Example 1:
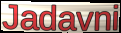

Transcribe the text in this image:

Jadavni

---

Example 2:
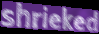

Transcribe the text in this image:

shrieked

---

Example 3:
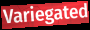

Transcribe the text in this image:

Variegated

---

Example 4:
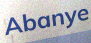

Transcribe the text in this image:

Abanye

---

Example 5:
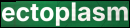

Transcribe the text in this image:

ectoplasm